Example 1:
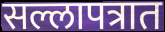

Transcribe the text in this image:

सल्लापत्रात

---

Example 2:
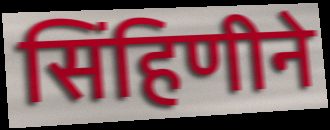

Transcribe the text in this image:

सिंहिणीने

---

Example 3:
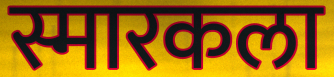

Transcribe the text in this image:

स्मारकला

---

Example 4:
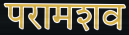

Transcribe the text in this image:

परामशव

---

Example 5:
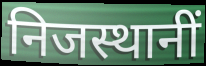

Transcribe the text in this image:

निजस्थानीं